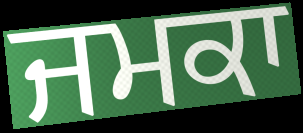
ਜਮਕਾ